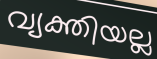
വ്യക്തിയല്ല